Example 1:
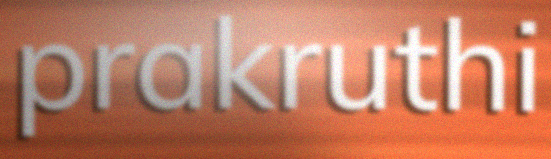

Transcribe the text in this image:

prakruthi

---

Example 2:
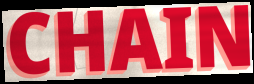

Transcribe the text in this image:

CHAIN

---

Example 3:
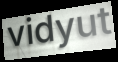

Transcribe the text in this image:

vidyut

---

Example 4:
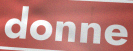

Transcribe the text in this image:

donne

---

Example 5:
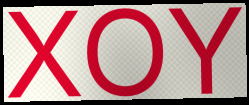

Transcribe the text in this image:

XOY